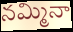
నమ్మినా